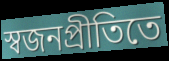
স্বজনপ্রীতিতে